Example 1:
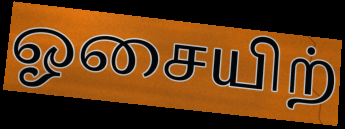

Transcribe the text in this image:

ஓசையிற்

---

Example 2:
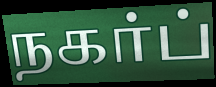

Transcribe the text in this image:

நகர்ப்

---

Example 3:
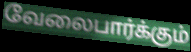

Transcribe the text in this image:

வேலைபார்க்கும்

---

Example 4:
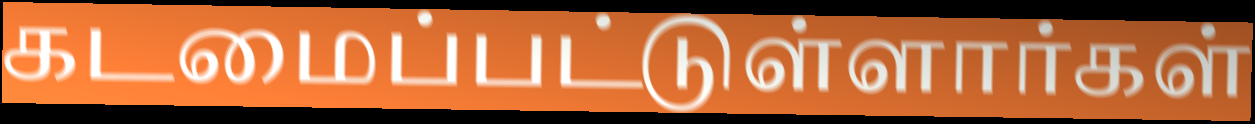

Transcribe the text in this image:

கடமைப்பட்டுள்ளார்கள்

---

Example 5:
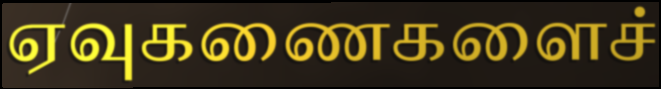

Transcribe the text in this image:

ஏவுகணைகளைச்